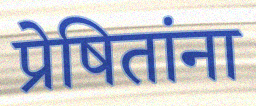
प्रेषितांना